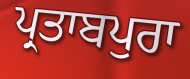
ਪ੍ਰਤਾਬਪੁਰਾ